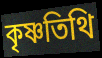
কৃষ্ণতিথি